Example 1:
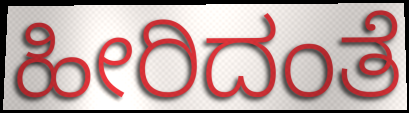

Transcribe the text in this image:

ಹೀರಿದಂತೆ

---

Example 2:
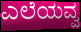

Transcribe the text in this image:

ಎಲೆಯವ್ವ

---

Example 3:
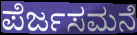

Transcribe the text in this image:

ಪೆರ್ಜಸಮನೆ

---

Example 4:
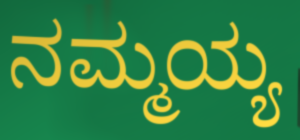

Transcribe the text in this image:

ನಮ್ಮಯ್ಯ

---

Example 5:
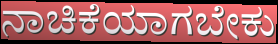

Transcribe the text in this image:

ನಾಚಿಕೆಯಾಗಬೇಕು